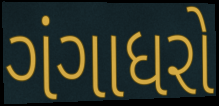
ગંગાધરો